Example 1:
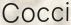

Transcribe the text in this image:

Cocci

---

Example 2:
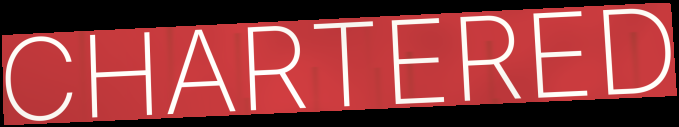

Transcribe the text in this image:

CHARTERED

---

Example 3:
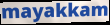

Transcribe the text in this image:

mayakkam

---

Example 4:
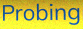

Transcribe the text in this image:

Probing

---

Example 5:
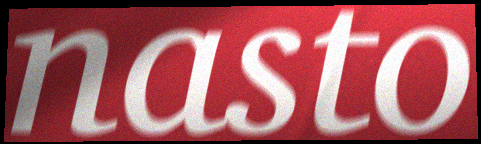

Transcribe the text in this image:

nasto